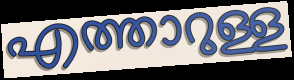
എത്താറുള്ള